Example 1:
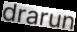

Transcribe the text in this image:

drarun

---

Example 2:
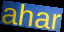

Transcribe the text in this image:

ahar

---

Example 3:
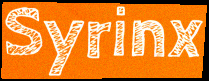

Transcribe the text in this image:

Syrinx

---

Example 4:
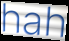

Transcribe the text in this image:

hah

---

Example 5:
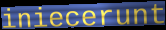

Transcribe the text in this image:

iniecerunt